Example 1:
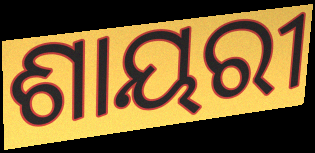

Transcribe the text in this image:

ଶାୟରୀ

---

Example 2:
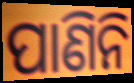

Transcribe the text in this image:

ପାଣିନି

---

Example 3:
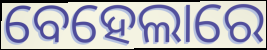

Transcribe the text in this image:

ବେହେଲାରେ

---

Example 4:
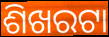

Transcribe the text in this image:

ଶିଖରଟା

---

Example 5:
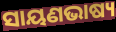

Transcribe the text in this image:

ସାୟଣଭାଷ୍ୟ